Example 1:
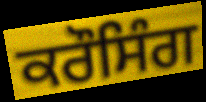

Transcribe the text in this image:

ਕਰੌਸਿੰਗ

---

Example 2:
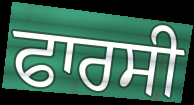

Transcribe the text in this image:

ਫਾਰਸੀ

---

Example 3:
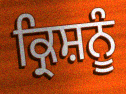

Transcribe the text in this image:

ਕ੍ਰਿਸ਼ਨੂੰ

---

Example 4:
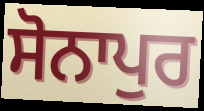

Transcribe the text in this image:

ਸੋਨਾਪੁਰ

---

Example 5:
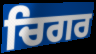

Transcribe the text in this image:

ਚਿਗਰ